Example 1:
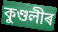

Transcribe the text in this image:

কুণ্ডলীৰ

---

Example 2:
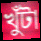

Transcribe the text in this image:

খুঁটা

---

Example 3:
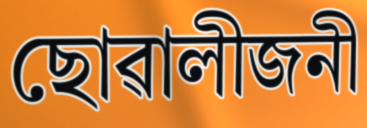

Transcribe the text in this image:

ছোৱালীজনী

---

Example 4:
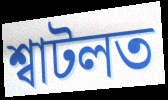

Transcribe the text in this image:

শ্বাটলত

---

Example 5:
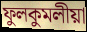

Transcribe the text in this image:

ফুলকুমলীয়া